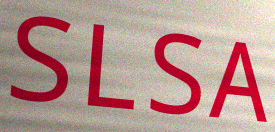
SLSA